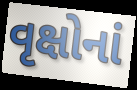
વૃક્ષોનાં